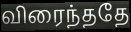
விரைந்ததே